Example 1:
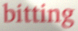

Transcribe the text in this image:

bitting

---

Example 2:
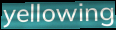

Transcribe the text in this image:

yellowing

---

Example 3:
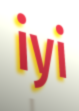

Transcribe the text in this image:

iyi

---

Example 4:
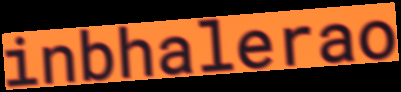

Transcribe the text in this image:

inbhalerao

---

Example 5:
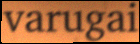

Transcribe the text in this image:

varugai